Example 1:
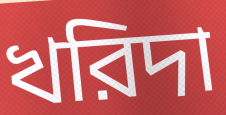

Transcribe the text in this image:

খরিদা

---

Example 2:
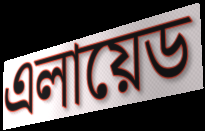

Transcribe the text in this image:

এলায়েড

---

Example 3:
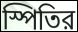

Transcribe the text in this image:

স্পিতির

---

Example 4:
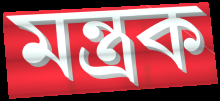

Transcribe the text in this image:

মন্ত্রক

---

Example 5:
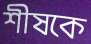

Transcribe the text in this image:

শীষকে